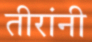
तीरांनी